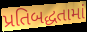
પ્રતિબદ્ધતામાં